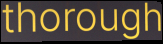
thorough